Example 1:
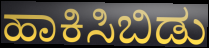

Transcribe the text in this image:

ಹಾಕಿಸಿಬಿಡು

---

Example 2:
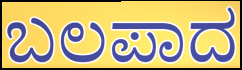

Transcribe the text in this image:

ಬಲಪಾದ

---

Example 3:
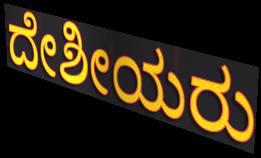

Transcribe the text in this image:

ದೇಶೀಯರು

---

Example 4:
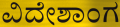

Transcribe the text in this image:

ವಿದೇಶಾಂಗ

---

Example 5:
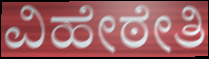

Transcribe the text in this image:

ವಿಹೇಠೇತಿ